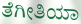
ತೆಗೀತಿಯಾ